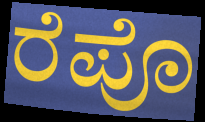
ರೆಪೊ